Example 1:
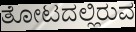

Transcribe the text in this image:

ತೋಟದಲ್ಲಿರುವ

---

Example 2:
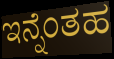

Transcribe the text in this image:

ಇನ್ನೆಂತಹ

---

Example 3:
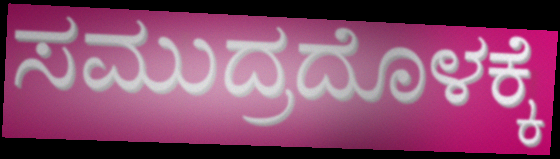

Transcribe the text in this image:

ಸಮುದ್ರದೊಳಕ್ಕೆ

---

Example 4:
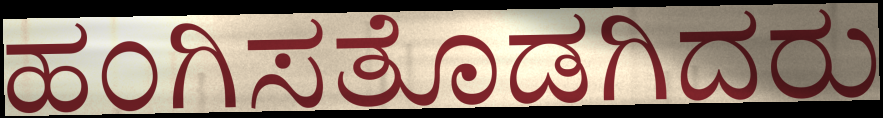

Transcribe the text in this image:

ಹಂಗಿಸತೊಡಗಿದರು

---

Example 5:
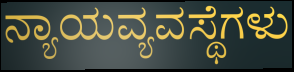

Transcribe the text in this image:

ನ್ಯಾಯವ್ಯವಸ್ಥೆಗಳು